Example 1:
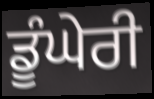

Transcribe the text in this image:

ਡੂੰਘੇਰੀ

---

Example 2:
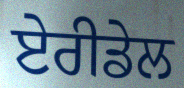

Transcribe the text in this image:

ਏਰੀਡੇਲ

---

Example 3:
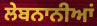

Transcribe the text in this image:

ਲੇਬਨਾਨੀਆਂ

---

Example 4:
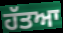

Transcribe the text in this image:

ਹੱਤਆ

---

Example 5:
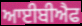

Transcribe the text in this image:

ਆਈਬੀਐਫ